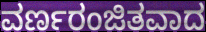
ವರ್ಣರಂಜಿತವಾದ